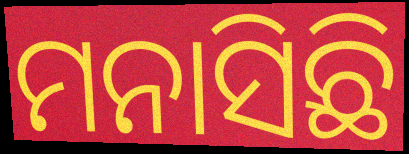
ମନାସିଛି